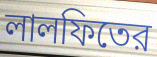
লালফিতের